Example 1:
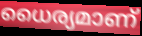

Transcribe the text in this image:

ധൈര്യമാണ്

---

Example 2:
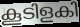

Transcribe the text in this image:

കൂടിളകി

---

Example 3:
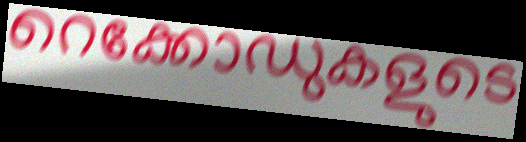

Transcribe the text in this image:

റെക്കോഡുകളുടെ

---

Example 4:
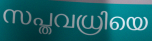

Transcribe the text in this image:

സപ്തവധ്രിയെ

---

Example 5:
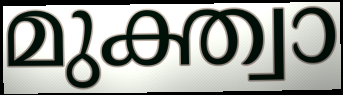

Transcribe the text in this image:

മുക്ത്വാ